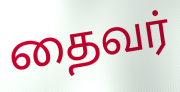
தைவர்